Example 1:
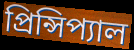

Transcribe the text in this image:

প্রিন্সিপ্যাল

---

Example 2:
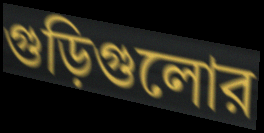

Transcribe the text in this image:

গুড়িগুলোর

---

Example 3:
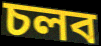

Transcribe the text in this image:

চলব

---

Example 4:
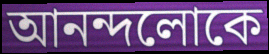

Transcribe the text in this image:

আনন্দলোকে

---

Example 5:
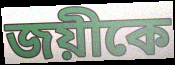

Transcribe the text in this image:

জয়ীকে